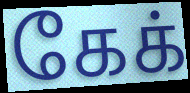
கேக்